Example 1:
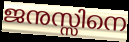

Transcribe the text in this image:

ജനുസ്സിനെ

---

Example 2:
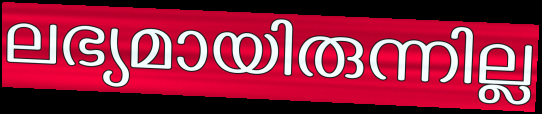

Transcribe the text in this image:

ലഭ്യമായിരുന്നില്ല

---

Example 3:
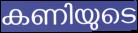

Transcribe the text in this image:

കണിയുടെ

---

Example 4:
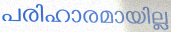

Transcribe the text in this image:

പരിഹാരമായില്ല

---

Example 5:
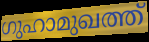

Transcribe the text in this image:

ഗുഹാമുഖത്ത്